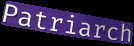
Patriarch